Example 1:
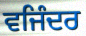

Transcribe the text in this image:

ਵਜਿੰਦਰ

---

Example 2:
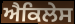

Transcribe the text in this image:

ਐਕਿਲੇਸ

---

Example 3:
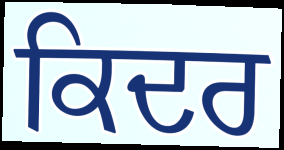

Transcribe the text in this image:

ਕਿਦਰ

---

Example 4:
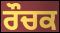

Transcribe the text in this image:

ਰੌਚਕ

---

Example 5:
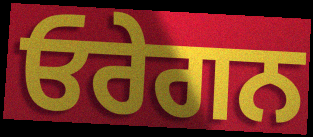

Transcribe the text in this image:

ਓਰੇਗਨ